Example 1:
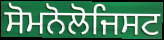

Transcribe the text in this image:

ਸੋਮਨੋਲੋਜਿਸਟ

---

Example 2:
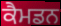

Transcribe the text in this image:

ਕੈਮਡਨ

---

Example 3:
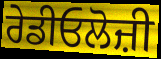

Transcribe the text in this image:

ਰੇਡੀਓਲੋਜ਼ੀ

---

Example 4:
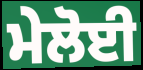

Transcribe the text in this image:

ਮੇਲੋਈ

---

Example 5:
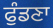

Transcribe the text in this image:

ਫੁੰਡਣਾ